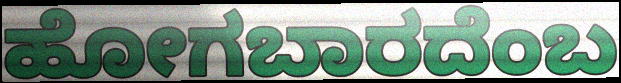
ಹೋಗಬಾರದೆಂಬ